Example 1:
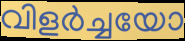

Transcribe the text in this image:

വിളർച്ചയോ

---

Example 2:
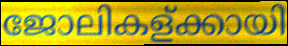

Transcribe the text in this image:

ജോലികള്ക്കായി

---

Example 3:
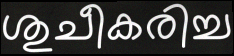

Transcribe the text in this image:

ശുചീകരിച്ച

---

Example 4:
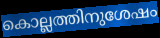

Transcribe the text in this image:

കൊല്ലത്തിനുശേഷം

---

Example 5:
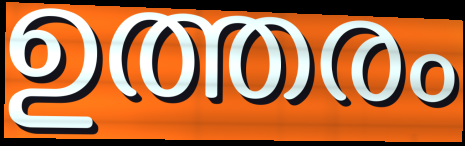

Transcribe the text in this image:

ഉത്തരം